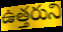
ఉత్తరుని